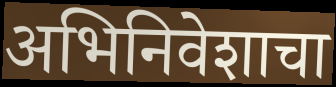
अभिनिवेशाचा